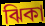
ঝিকা